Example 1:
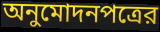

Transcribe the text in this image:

অনুমোদনপত্রের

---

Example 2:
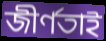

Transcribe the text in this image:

জীর্ণতাই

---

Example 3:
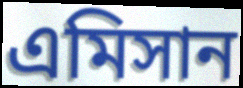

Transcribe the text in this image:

এমিসান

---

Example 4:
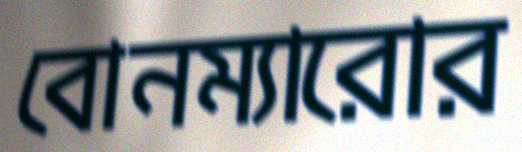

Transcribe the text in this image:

বোনম্যারোর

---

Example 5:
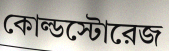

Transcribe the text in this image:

কোল্ডস্টোরেজ